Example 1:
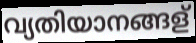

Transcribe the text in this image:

വ്യതിയാനങ്ങള്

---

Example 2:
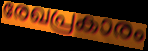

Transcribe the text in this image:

രേഖപ്രകാരം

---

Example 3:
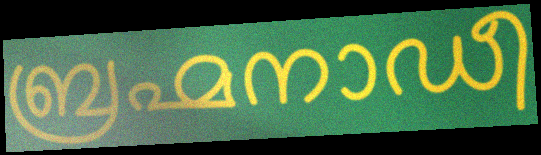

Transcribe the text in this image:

ബ്രഹ്മനാഡീ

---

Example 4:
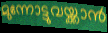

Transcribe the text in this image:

മുന്നോട്ടുവയ്ക്കാൻ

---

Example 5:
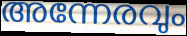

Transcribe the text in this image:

അന്നേരവും